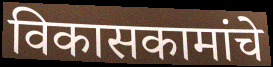
विकासकामांचे